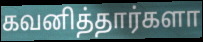
கவனித்தார்களா